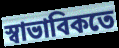
স্বাভাবিকতে